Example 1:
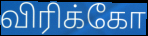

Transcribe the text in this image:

விரிக்கோ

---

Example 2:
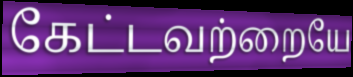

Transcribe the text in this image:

கேட்டவற்றையே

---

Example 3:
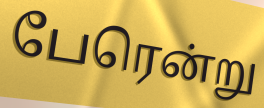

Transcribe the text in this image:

பேரென்று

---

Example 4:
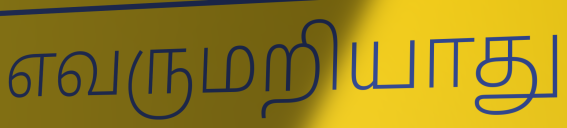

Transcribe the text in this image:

எவருமறியாது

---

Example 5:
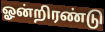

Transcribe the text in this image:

ஓன்றிரண்டு